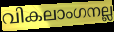
വികലാംഗനല്ല